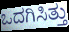
ಒದಗಿಸಿತ್ತು